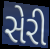
સેરી